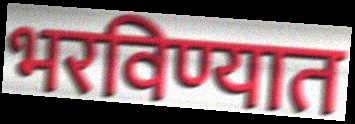
भरविण्यात